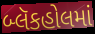
બ્લૅકહોલમાં